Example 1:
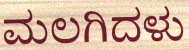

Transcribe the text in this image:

ಮಲಗಿದಳು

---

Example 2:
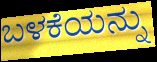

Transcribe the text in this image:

ಬಳಕೆಯನ್ನು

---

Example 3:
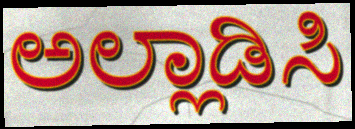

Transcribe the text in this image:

ಅಲ್ಲಾಡಿಸಿ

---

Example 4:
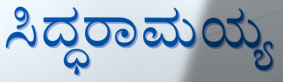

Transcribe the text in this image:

ಸಿದ್ಧರಾಮಯ್ಯ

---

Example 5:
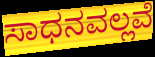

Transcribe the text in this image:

ಸಾಧನವಲ್ಲವೆ